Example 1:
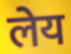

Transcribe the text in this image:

लेय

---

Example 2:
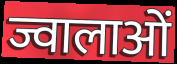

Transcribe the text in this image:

ज्वालाओं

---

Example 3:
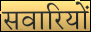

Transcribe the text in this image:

सवारियों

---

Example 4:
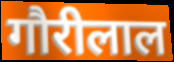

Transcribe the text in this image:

गौरीलाल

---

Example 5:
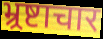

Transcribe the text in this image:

भ्र्रष्टाचार